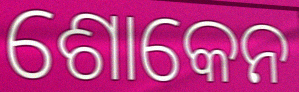
ଶୋକେନ